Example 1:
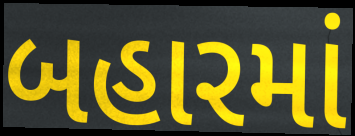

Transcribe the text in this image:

બહારમાં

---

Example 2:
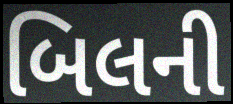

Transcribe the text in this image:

બિલની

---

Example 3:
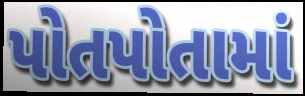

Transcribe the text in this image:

પોતપોતામાં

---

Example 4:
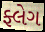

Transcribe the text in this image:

ફ્લેગ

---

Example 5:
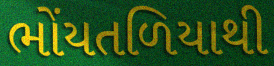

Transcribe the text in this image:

ભોંયતળિયાથી